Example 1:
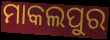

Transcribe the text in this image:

ମାକଲପୁର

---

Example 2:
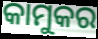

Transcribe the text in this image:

କାମୁକର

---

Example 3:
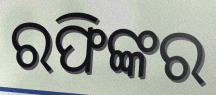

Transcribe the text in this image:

ରଫିଙ୍କର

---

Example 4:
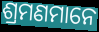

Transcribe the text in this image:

ଶ୍ରମଣମାନେ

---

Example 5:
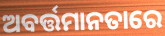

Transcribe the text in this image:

ଅବର୍ତ୍ତମାନତାରେ